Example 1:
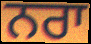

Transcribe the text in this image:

ਨਰਾ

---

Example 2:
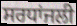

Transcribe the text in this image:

ਸਰਧਾਂਜਲੀ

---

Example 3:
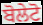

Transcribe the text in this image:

ਬੋਲੇਟੋ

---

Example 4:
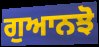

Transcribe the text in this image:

ਗੁਆਨਝੋ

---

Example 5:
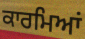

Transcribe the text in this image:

ਕਾਰਮਿਆਂ